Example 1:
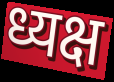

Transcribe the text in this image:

ध्यक्ष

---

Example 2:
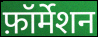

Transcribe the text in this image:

फ़ॉर्मेशन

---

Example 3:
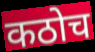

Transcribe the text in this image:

कठोच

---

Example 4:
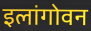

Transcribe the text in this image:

इलांगोवन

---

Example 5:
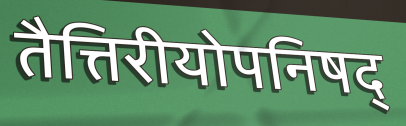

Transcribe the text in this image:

तैत्तिरीयोपनिषद्